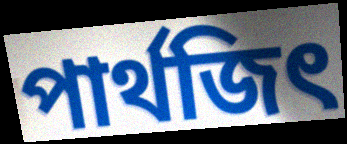
পার্থজিৎ